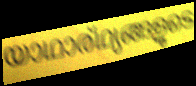
യാഥാര്ഥ്യങ്ങളുടെ